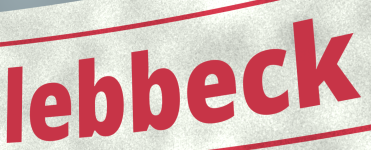
lebbeck